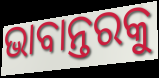
ଭାବାନ୍ତରକୁ